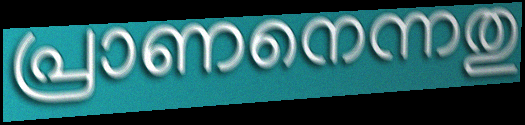
പ്രാണനെന്നതു